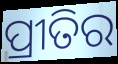
ପ୍ରୀତିର